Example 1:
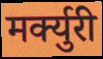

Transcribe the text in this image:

मर्क्युरी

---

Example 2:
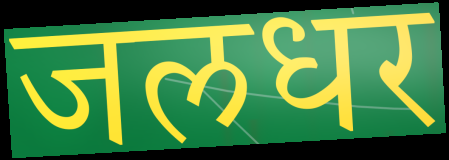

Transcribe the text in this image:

जलधर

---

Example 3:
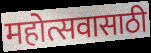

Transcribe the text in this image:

महोत्सवासाठी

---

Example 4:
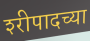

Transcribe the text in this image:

श्रीपादच्या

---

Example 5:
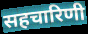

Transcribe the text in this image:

सहचारिणी